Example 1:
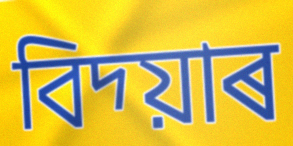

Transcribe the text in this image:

বিদ্য়াৰ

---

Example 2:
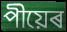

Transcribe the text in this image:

পীয়েৰ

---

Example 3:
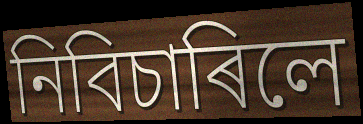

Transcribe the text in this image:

নিবিচাৰিলে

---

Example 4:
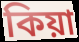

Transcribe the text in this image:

কিয়া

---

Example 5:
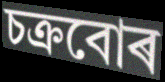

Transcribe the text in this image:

চক্ৰবোৰ